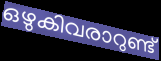
ഒഴുകിവരാറുണ്ട്